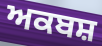
ਅਕਬਸ਼